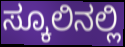
ಸ್ಕೂಲಿನಲ್ಲಿ